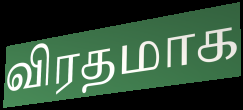
விரதமாக